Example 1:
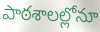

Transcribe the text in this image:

పాఠశాలల్లోనూ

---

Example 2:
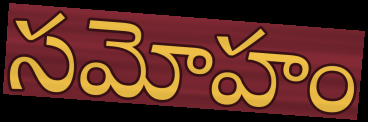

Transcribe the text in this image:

సమోహం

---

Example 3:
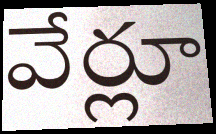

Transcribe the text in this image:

వేర్లూ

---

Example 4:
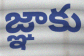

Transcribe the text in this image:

జ్ఞాకు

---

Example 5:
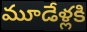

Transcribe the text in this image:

మూడేళ్లకి